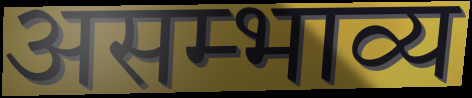
असम्भाव्य